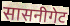
सासनीगेट